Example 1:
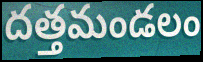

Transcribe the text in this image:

దత్తమండలం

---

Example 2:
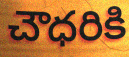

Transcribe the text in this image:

చౌధరికి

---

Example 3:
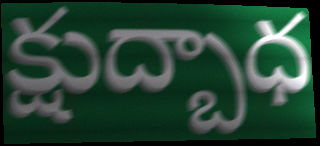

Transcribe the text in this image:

క్షుద్బాధ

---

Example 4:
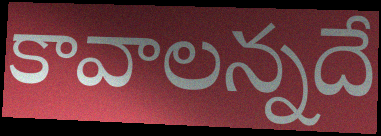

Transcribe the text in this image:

కావాలన్నదే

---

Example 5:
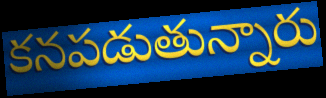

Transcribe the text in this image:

కనపడుతున్నారు